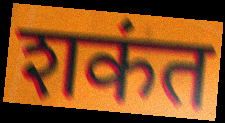
शकंत